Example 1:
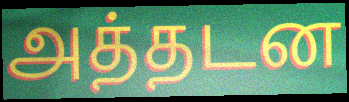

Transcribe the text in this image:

அத்தடன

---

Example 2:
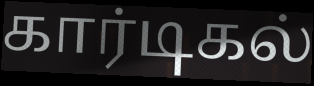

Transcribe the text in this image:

கார்டிகல்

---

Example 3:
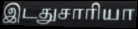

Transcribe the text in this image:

இடதுசாரியா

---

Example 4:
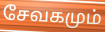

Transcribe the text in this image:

சேவகமும்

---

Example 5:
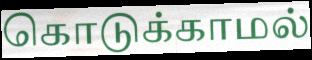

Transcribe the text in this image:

கொடுக்காமல்